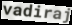
vadiraj